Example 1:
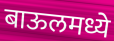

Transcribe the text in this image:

बाऊलमध्ये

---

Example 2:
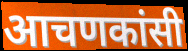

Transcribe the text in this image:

आचणकांसी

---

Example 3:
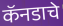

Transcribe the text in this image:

कॅनडाचे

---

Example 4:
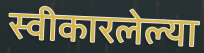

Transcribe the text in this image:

स्वीकारलेल्या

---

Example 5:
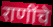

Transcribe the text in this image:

राणींचे